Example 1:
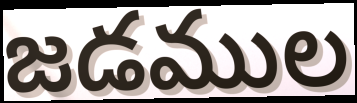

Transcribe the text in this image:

జడముల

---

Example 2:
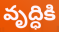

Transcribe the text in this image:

వృద్ధికి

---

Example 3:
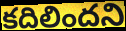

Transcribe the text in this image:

కదిలిందని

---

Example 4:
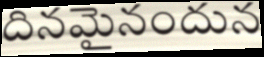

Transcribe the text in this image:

దినమైనందున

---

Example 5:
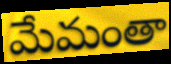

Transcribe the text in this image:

మేమంతా